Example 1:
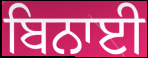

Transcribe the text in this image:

ਬਿਨਾਈ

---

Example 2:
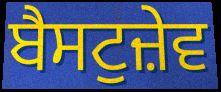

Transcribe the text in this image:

ਬੈਸਟੁਜ਼ੇਵ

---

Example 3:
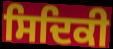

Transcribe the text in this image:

ਸਿਦਿਕੀ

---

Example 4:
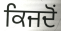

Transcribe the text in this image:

ਕਿਜਦੋਂ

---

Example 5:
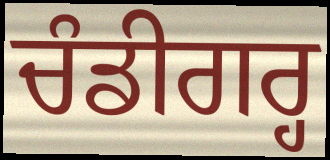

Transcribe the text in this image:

ਚੰਡੀਗਰ੍ਹ